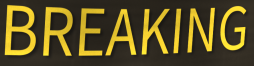
BREAKING